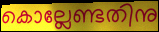
കൊല്ലേണ്ടതിനു